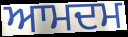
ਆਮਦਮ